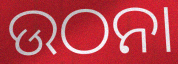
ଉଠନା